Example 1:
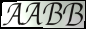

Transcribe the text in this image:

AABB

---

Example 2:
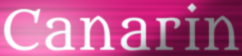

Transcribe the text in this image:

Canarin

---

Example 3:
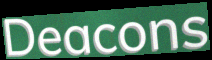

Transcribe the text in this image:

Deacons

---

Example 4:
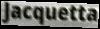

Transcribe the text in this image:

Jacquetta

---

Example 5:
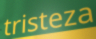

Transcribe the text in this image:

tristeza